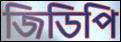
জিডিপি